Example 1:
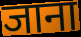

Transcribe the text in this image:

जाना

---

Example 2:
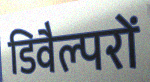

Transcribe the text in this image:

डिवैल्परों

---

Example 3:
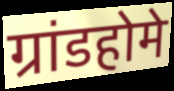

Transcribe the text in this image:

ग्रांडहोमे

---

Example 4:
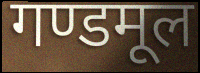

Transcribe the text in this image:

गण्डमूल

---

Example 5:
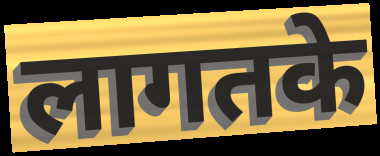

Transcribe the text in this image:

लागतके